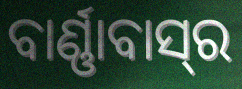
ବାର୍ଣ୍ଣାବାସ୍‌ର